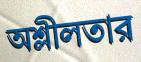
অশ্লীলতার